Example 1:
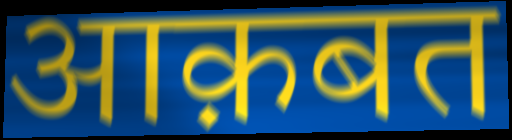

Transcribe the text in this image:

आक़बत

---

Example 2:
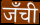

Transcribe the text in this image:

जँची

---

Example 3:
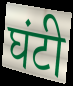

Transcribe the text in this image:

घंटी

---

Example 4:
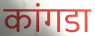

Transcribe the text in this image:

कांगडा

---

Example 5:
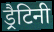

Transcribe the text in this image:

ड्रैटिनी